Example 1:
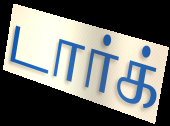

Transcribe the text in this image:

டார்க்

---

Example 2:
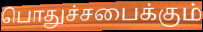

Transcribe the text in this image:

பொதுச்சபைக்கும்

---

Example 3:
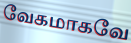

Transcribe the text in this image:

வேகமாகவே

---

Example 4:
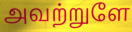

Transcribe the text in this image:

அவற்றுளே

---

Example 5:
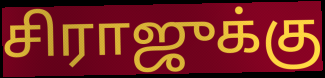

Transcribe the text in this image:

சிராஜுக்கு